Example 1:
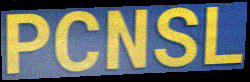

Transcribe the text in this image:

PCNSL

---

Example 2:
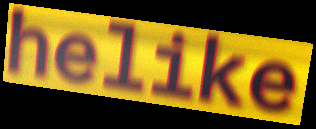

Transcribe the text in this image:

helike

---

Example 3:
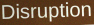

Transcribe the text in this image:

Disruption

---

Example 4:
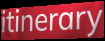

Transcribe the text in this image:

itinerary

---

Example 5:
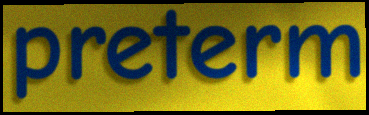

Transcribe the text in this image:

preterm